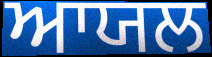
ਆਯਲ